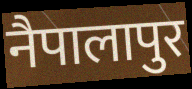
नैपालापुर